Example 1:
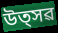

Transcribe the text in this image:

উত্সৱ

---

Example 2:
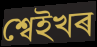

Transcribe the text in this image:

শ্বেইখৰ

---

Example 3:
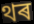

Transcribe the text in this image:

থৰ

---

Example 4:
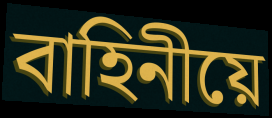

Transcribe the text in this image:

বাহিনীয়ে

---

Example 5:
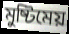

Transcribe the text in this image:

মুষ্টিমেয়